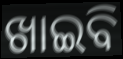
ଖାଇବି